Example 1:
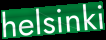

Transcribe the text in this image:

helsinki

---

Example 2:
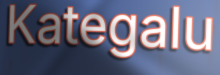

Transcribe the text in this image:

Kategalu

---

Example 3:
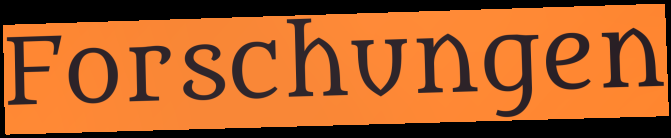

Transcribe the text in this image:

Forschungen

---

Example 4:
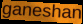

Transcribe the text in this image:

ganeshan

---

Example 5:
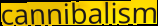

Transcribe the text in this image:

cannibalism